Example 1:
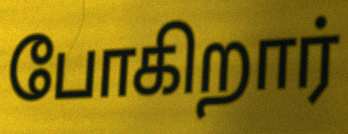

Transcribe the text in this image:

போகிறார்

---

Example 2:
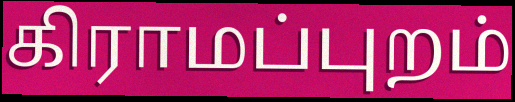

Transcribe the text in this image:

கிராமப்புறம்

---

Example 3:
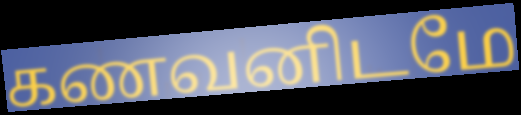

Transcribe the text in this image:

கணவனிடமே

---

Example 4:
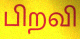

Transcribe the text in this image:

பிறவி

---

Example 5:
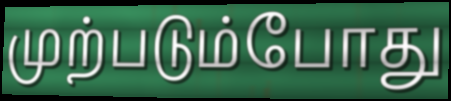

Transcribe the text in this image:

முற்படும்போது